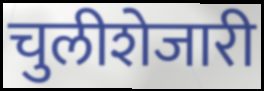
चुलीशेजारी